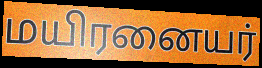
மயிரனையர்